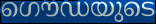
ഗൌഡയുടെ